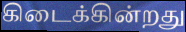
கிடைக்கின்றது